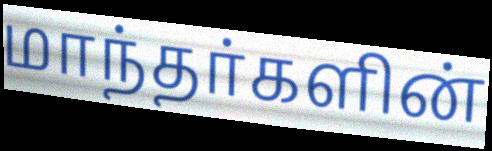
மாந்தர்களின்